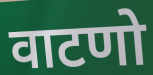
वाटणो